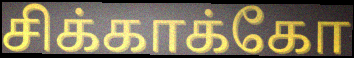
சிக்காக்கோ